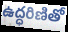
ఉద్ధరిణితో